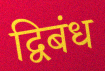
द्विबंध